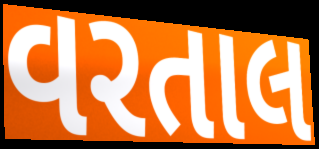
વરતાલ